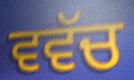
ਵਵੱਚ